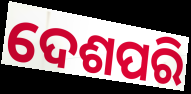
ଦେଶପରି